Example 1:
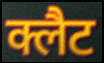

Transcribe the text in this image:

क्लैट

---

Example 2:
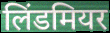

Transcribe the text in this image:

लिंडमियर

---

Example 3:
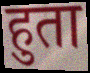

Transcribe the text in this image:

हुता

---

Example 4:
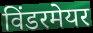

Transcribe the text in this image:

विंडरमेयर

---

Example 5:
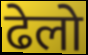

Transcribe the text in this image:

ढेलो